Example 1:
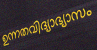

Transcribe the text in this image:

ഉന്നതവിദ്യാഭ്യാസം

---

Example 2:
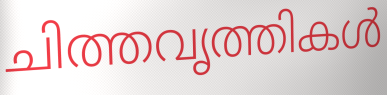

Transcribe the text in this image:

ചിത്തവൃത്തികൾ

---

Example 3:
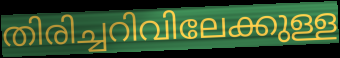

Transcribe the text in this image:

തിരിച്ചറിവിലേക്കുള്ള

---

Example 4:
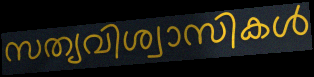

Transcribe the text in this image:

സത്യവിശ്വാസികൾ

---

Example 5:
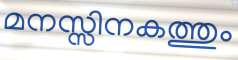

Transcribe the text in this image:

മനസ്സിനകത്തും